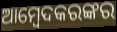
ଆମ୍ବେଦକରଙ୍କର